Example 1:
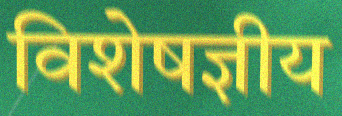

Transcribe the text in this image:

विशेषज्ञीय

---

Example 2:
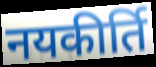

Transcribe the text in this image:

नयकीर्ति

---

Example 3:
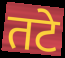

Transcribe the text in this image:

तटे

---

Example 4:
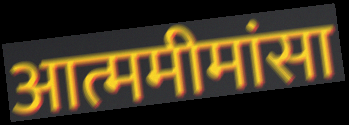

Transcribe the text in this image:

आत्ममीमांसा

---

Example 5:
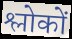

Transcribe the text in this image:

श्लोकों